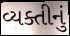
વ્યક્તીનું